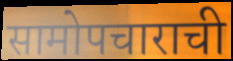
सामोपचाराची